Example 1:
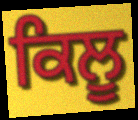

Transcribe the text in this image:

ਕਿਲੂ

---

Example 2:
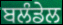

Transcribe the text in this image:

ਬਲੰਡੇਲ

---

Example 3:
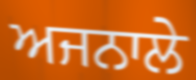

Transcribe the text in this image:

ਅਜਨਾਲੇ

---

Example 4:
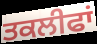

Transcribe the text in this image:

ਤਕਲੀਫਾਂ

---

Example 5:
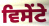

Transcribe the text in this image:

ਵਿਸੇਂਟੇ